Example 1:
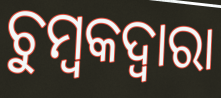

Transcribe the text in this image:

ଚୁମ୍ବକଦ୍ବାରା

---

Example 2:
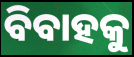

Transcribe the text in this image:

ବିବାହକୁ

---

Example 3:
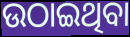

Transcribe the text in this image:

ଉଠାଇଥିବା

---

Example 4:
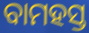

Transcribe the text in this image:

ବାମହସ୍ତ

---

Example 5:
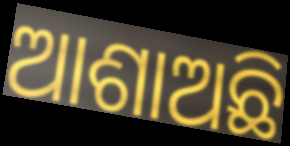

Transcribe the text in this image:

ଆଶାଅଛି